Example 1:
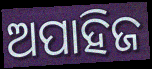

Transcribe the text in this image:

ଅପାହିଜ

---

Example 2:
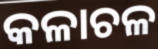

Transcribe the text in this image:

କଳାଚଳ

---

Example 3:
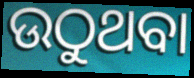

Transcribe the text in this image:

ଉଠୁଥବା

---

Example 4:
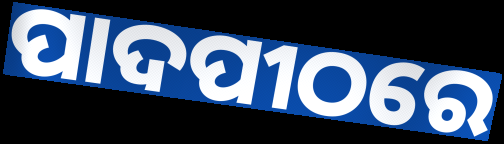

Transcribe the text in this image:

ପାଦପୀଠରେ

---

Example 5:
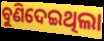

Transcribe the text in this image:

ବୁଣିଦେଇଥିଲା